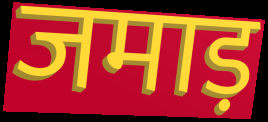
जमाड़